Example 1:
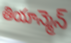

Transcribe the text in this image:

తియాన్మెన్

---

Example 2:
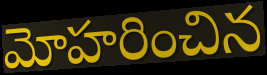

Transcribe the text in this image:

మోహరించిన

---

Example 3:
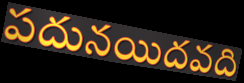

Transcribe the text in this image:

పదునయిదవది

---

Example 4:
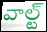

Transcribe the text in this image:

వాల్ట్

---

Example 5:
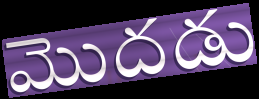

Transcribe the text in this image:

మొదడు